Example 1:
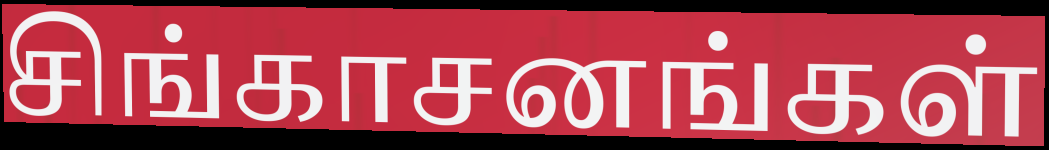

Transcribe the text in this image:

சிங்காசனங்கள்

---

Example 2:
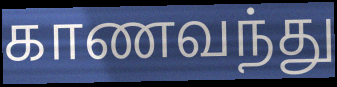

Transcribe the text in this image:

காணவந்து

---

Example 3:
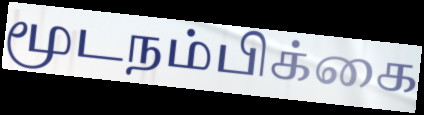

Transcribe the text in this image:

மூடநம்பிக்கை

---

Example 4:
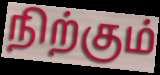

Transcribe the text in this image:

நிற்கும்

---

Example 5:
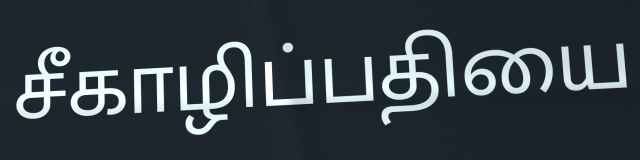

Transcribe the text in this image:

சீகாழிப்பதியை